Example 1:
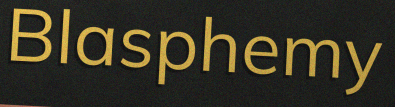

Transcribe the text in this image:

Blasphemy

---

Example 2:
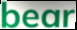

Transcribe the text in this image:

bear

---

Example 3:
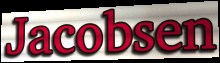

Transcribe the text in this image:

Jacobsen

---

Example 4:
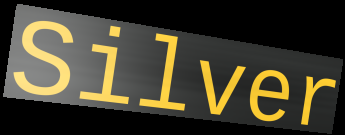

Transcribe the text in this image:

Silver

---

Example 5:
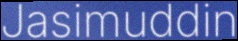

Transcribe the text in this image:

Jasimuddin